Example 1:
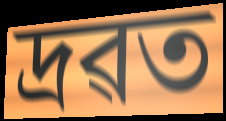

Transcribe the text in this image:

দ্ৰৱত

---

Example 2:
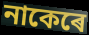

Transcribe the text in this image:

নাকেৰে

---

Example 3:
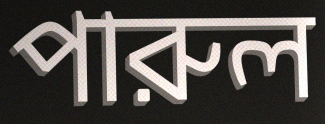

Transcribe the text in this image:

পাৰুল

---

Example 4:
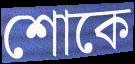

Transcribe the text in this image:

শোকে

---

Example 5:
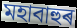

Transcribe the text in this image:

মহাবাহুৰ